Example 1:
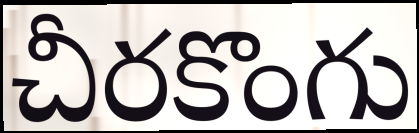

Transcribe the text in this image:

చీరకొంగు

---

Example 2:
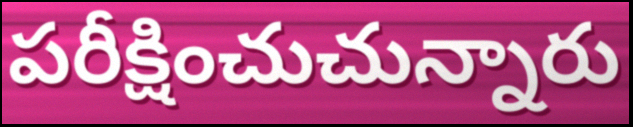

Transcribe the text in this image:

పరీక్షించుచున్నారు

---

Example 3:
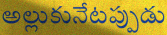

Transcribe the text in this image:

అల్లుకునేటప్పుడు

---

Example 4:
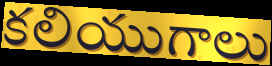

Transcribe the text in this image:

కలియుగాలు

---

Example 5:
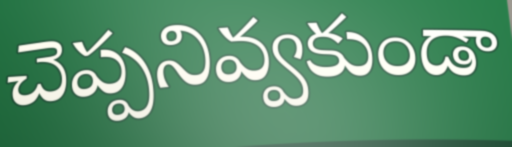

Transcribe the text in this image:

చెప్పనివ్వకుండా